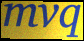
mvq